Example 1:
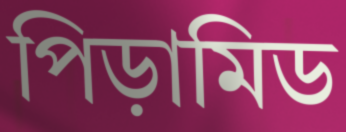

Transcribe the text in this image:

পিড়ামিড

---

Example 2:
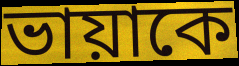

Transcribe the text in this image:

ভায়াকে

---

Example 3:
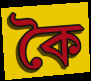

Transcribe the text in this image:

কৈ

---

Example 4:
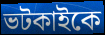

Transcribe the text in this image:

ভটকাইকে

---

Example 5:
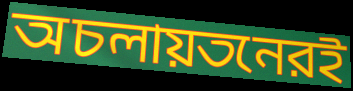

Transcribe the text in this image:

অচলায়তনেরই